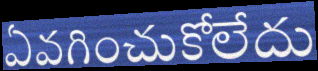
ఏవగించుకోలేదు